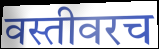
वस्तीवरच